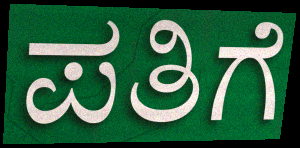
ಪತಿಗೆ